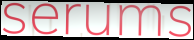
serums